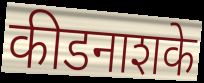
कीडनाशके